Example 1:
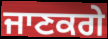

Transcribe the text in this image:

ਜਾਣਕਗੇ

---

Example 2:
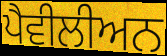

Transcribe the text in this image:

ਪੈਵੀਲੀਅਨ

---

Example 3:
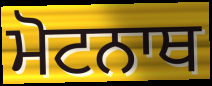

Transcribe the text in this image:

ਮੋਟਨਾਥ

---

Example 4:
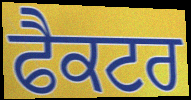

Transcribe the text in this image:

ਫੈਕਟਰ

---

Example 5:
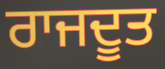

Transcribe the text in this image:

ਰਾਜਦੂਤ